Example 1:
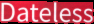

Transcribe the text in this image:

Dateless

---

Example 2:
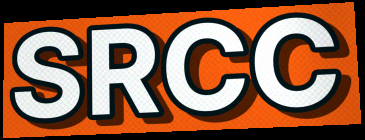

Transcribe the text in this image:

SRCC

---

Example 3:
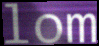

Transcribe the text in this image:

lom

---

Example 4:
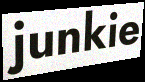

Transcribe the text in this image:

junkie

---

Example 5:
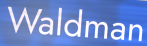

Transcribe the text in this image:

Waldman